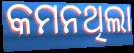
କମନଥିଲା